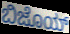
ಬಿಜೊಯ್